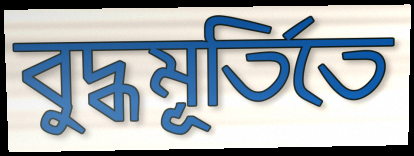
বুদ্ধমূর্তিতে